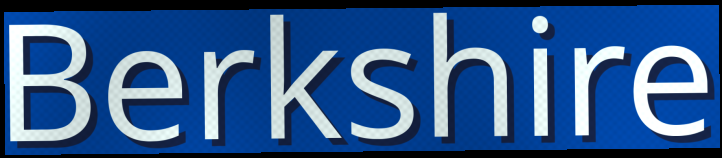
Berkshire